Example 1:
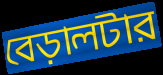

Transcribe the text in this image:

বেড়ালটার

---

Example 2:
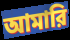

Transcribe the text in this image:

আমারি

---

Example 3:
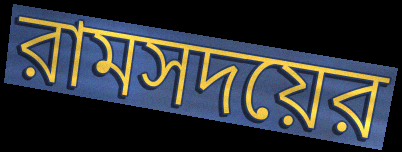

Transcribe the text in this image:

রামসদয়ের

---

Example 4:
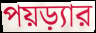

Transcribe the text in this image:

পয়ড়্যার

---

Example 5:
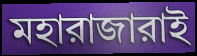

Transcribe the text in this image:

মহারাজারাই